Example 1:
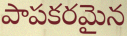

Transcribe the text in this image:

పాపకరమైన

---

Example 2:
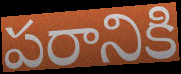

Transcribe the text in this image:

పరానికి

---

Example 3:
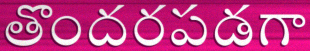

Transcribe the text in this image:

తొందరపడగా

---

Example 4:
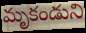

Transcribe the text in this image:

మృకండుని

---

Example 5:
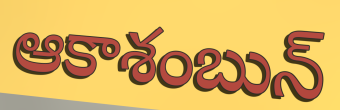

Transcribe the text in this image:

ఆకాశంబున్